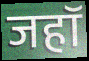
जहॉ